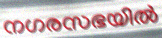
നഗരസഭയിൽ